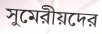
সুমেরীয়দের